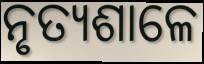
ନୃତ୍ୟଶାଳେ